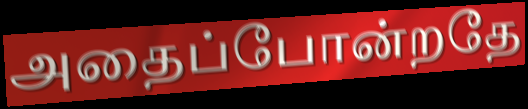
அதைப்போன்றதே